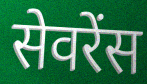
सेवरेंस